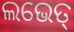
ଲଭେତ୍